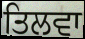
ਤਿਲਵਾ